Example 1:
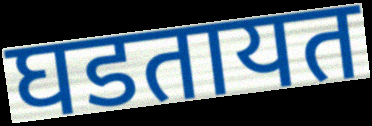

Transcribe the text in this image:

घडतायत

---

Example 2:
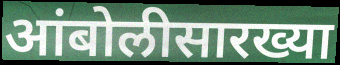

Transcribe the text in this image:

आंबोलीसारख्या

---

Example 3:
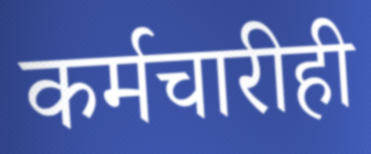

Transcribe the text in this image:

कर्मचारीही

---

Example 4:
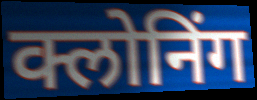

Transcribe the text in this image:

क्लोनिंग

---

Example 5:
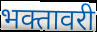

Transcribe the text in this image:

भक्तावरी